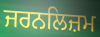
ਜਰਨਲਿਜ਼ਮ